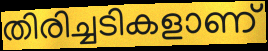
തിരിച്ചടികളാണ്